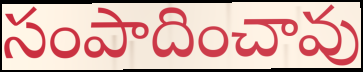
సంపాదించావు